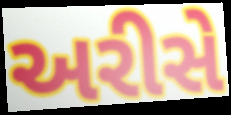
અરીસે